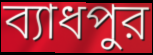
ব্যাধপুর